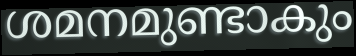
ശമനമുണ്ടാകും